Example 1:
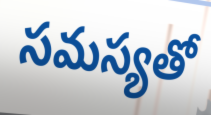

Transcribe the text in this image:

సమస్యతో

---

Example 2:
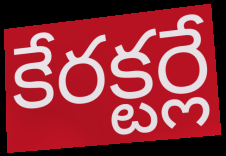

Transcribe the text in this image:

కేరక్టర్లే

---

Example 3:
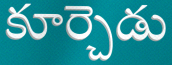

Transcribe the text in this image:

కూర్చెడు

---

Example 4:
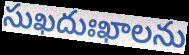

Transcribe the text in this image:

సుఖదుఃఖాలను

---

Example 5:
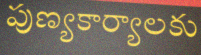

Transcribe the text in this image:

పుణ్యకార్యాలకు